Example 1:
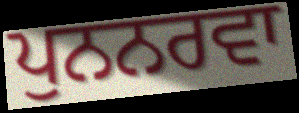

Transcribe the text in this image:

ਪੁਨਨਰਵਾ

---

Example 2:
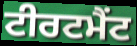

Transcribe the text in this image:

ਟੀਰਟਮੈਂਟ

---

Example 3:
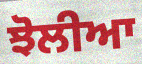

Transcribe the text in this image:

ਝੋਲੀਆ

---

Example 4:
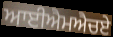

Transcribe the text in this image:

ਆਈਐਮਐਚਏ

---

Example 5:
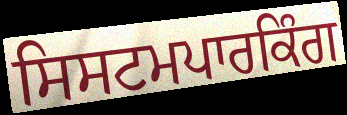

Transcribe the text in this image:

ਸਿਸਟਮਪਾਰਕਿੰਗ